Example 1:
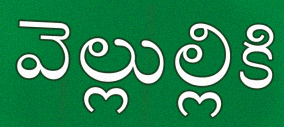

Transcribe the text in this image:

వెల్లుల్లికి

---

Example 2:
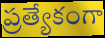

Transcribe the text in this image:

ప్రత్యేకంగా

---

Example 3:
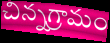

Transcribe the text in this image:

చిన్నగ్రామం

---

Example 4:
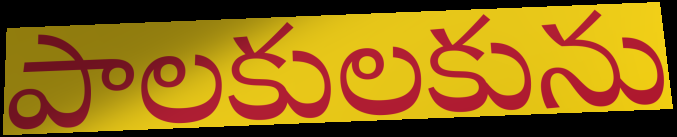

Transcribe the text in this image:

పాలకులకును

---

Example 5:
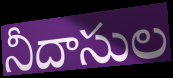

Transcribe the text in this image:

నీదాసుల